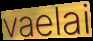
vaelai